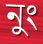
নুং